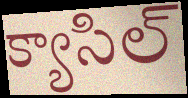
క్యాసిల్